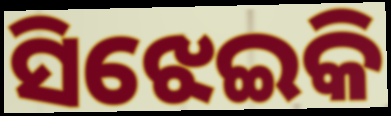
ସିଝେଇକି